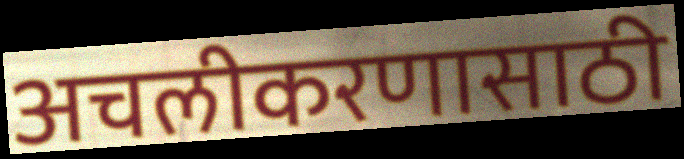
अचलीकरणासाठी